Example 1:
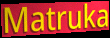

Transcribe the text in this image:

Matruka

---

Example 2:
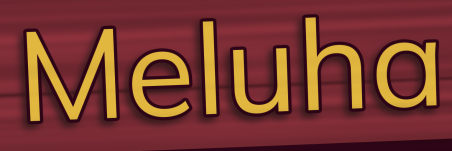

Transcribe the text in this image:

Meluha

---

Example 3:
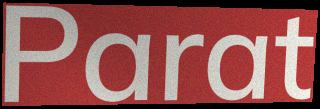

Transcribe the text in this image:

Parat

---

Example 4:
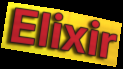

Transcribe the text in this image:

Elixir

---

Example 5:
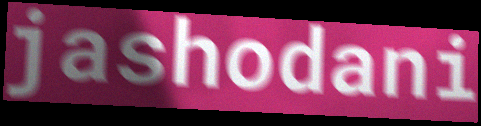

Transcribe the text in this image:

jashodani